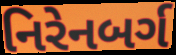
નિરેનબર્ગ